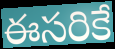
ఈసరికే